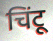
चिंटू